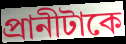
প্রানীটাকে